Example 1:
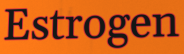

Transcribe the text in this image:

Estrogen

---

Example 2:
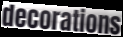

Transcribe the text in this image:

decorations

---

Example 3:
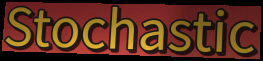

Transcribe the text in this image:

Stochastic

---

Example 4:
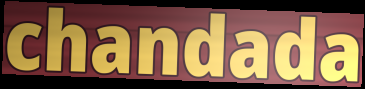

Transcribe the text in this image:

chandada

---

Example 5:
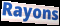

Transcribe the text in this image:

Rayons